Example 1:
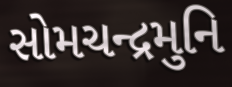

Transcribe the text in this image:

સોમચન્દ્રમુનિ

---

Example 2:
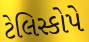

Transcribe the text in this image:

ટેલિસ્કોપે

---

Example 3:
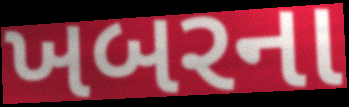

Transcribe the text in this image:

ખબરના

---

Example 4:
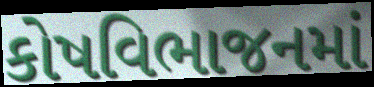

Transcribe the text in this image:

કોષવિભાજનમાં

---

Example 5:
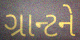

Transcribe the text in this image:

ગ્રાન્ટને